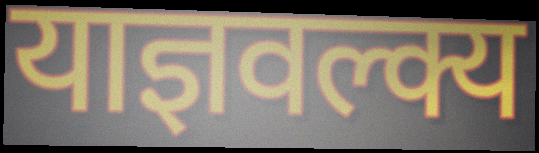
याज्ञवल्क्य